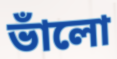
ভাঁলো